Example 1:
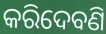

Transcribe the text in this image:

କରିଦେବଣି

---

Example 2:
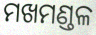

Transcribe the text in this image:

ମଖମଣ୍ଡଳ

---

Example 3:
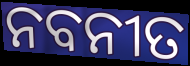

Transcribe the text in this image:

ନବନୀତ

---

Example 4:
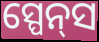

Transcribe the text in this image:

ସ୍ପେନ୍‌ସ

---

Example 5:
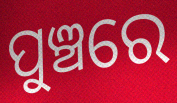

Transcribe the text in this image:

ପୁଞ୍ଚରେ